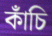
কাঁচি